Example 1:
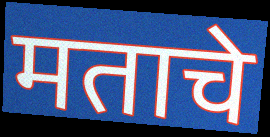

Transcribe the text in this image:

मताचे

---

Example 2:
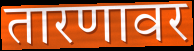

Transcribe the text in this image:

तारणावर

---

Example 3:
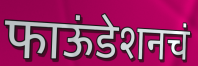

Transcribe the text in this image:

फाऊंडेशनचं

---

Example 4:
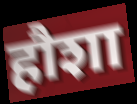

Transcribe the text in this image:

हौशा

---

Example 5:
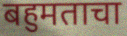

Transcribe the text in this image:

बहुमताचा